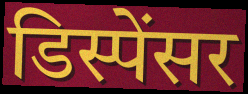
डिस्पेंसर